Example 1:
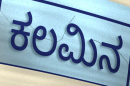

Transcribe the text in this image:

ಕಲಮಿನ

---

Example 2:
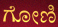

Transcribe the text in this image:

ಗೋಣಿ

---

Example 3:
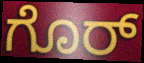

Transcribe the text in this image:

ಗೊರ್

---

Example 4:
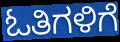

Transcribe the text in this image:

ಓತಿಗಳಿಗೆ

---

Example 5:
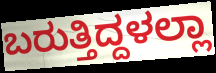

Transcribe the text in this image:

ಬರುತ್ತಿದ್ದಳಲ್ಲಾ